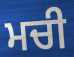
ਮਚੀ